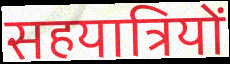
सहयात्रियों